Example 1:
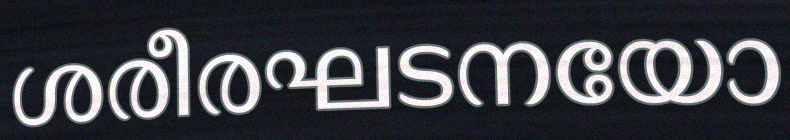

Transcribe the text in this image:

ശരീരഘടനയോ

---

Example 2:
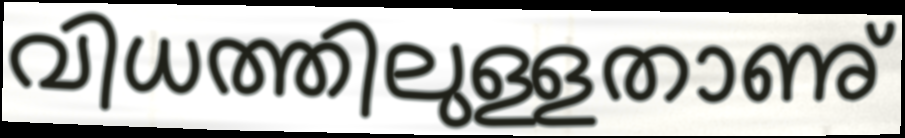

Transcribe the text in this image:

വിധത്തിലുള്ളതാണു്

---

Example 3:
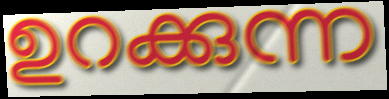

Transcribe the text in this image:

ഉറക്കുന്ന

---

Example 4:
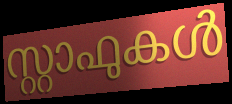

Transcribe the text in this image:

സ്റ്റാഫുകൾ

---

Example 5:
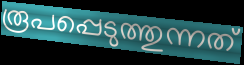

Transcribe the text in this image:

രൂപപ്പെടുത്തുന്നത്